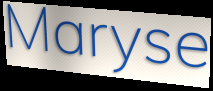
Maryse